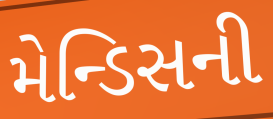
મેન્ડિસની